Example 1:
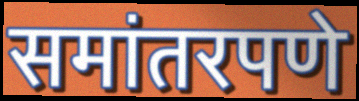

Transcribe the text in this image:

समांतरपणे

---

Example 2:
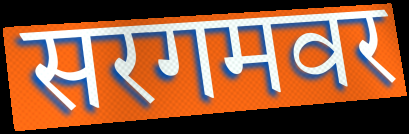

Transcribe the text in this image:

सरगमवर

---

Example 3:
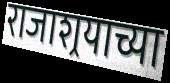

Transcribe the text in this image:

राजाश्रयाच्या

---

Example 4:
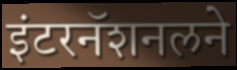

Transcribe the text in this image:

इंटरनॅशनलने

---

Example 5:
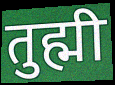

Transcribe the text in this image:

तुह्मी